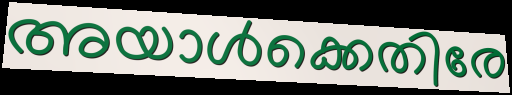
അയാൾക്കെതിരേ